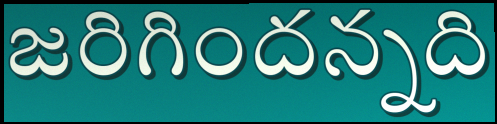
జరిగిందన్నది